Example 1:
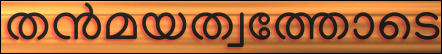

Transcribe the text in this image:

തൻമയത്വത്തോടെ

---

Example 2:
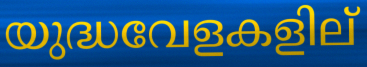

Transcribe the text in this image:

യുദ്ധവേളകളില്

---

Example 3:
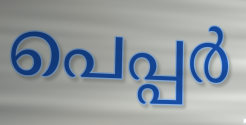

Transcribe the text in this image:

പെപ്പർ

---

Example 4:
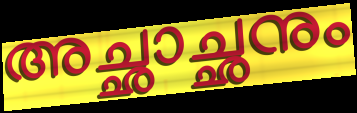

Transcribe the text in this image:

അച്ഛാച്ഛനും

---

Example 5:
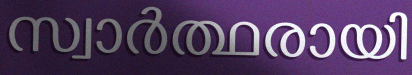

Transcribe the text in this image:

സ്വാർത്ഥരായി